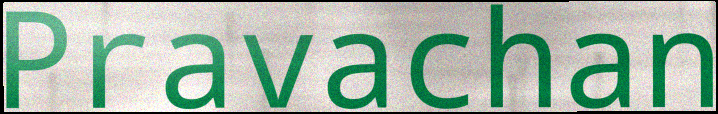
Pravachan